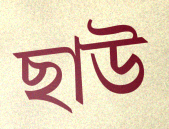
ছাউ